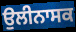
ਉਲੀਨਾਸਕ